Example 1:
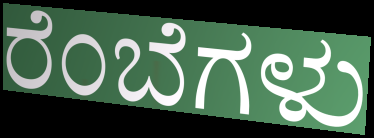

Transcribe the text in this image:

ರೆಂಬೆಗಳು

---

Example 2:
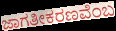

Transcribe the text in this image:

ಜಾಗತೀಕರಣವೆಂಬ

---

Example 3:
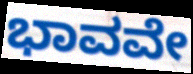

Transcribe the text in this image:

ಭಾವವೇ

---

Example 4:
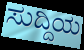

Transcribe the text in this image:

ಸುದ್ದಿಯ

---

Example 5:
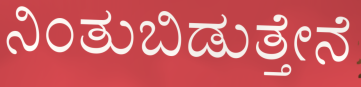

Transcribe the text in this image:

ನಿಂತುಬಿಡುತ್ತೇನೆ